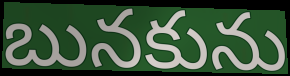
బునకును